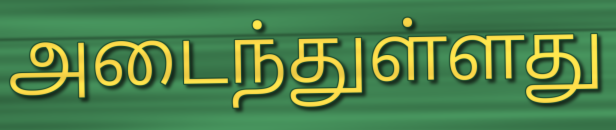
அடைந்துள்ளது